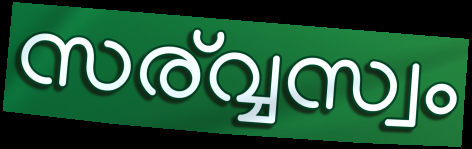
സര്വ്വസ്വം